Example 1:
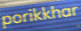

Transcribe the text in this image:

porikkhar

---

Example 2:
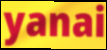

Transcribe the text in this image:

yanai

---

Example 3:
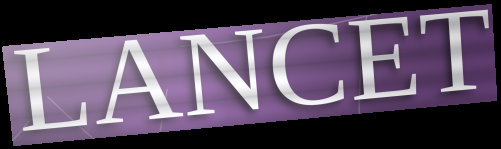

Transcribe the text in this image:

LANCET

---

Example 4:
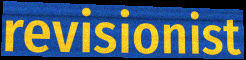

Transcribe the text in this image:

revisionist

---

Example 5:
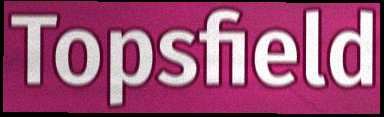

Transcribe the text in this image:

Topsfield